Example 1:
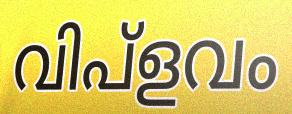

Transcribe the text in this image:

വിപ്ളവം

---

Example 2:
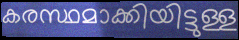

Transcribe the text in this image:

കരസ്ഥമാക്കിയിട്ടുള്ള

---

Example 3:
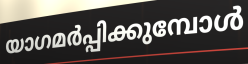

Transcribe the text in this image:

യാഗമർപ്പിക്കുമ്പോൾ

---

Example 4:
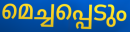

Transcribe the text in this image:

മെച്ചപ്പെടും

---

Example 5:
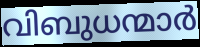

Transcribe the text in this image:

വിബുധന്മാർ